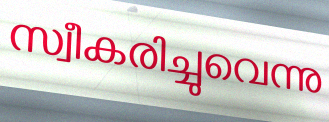
സ്വീകരിച്ചുവെന്നു